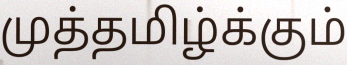
முத்தமிழ்க்கும்